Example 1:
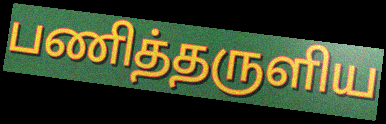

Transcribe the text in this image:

பணித்தருளிய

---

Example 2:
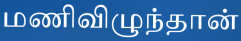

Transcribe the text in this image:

மணிவிழுந்தான்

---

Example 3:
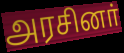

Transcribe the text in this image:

அரசினர்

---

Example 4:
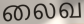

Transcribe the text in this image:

லைவ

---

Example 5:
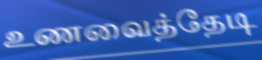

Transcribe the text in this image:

உணவைத்தேடி